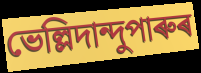
ভেল্লিদান্দুপাৰুৰ